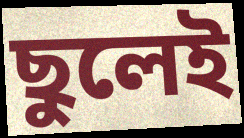
ছুলেই